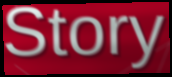
Story